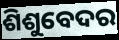
ଶିଶୁବେଦର